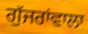
ਗੁੱਜਰਾਂਵਾਲਾ